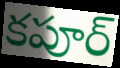
కపూర్